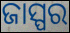
ଜାସ୍ପର